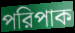
পরিপাক